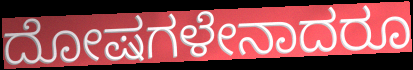
ದೋಷಗಳೇನಾದರೂ